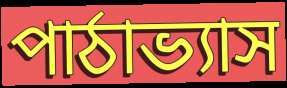
পাঠাভ্যাস